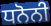
ਧਨੋਨੀ